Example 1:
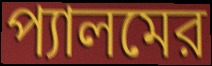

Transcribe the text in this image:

প্যালমের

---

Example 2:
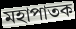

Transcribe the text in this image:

মহাপাতক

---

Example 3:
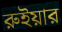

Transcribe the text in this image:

রুইয়ার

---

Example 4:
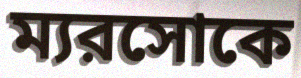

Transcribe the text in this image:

ম্যরসোকে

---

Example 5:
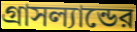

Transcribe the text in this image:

গ্রাসল্যান্ডের